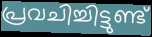
പ്രവചിച്ചിട്ടുണ്ട്